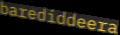
barediddeera